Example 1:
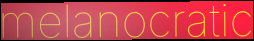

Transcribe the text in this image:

melanocratic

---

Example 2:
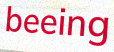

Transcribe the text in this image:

beeing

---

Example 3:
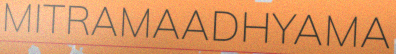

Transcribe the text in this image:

MITRAMAADHYAMA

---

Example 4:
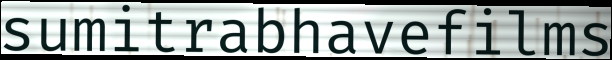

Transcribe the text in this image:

sumitrabhavefilms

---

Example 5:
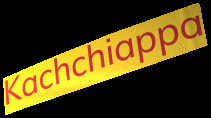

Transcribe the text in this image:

Kachchiappa